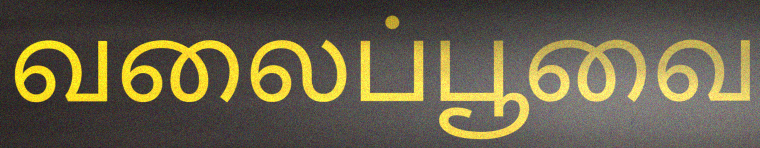
வலைப்பூவை